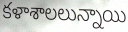
కళాశాలలున్నాయి